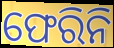
ଫେରିନି